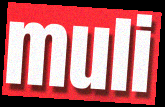
muli